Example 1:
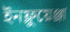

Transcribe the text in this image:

ইনফ্লুয়েঞ্জা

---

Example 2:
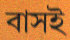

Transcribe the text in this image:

বাসই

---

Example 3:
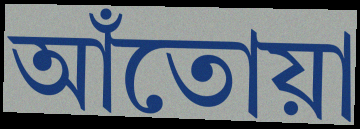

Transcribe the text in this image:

আঁতোয়া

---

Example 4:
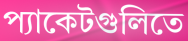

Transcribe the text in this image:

প্যাকেটগুলিতে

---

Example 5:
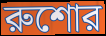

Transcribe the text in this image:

রুশোর